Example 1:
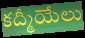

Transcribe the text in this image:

కద్మీయేలు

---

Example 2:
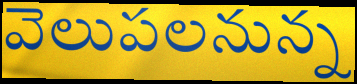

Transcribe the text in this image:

వెలుపలనున్న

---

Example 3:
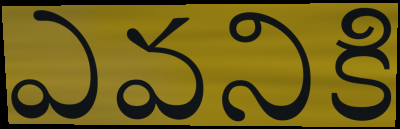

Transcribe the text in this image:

ఎవనికి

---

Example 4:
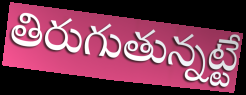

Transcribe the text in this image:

తిరుగుతున్నట్టే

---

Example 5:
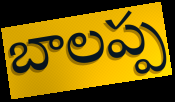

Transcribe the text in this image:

బాలప్ప